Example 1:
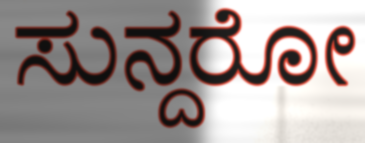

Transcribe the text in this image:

ಸುನ್ದರೋ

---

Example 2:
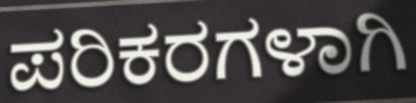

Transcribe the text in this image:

ಪರಿಕರಗಳಾಗಿ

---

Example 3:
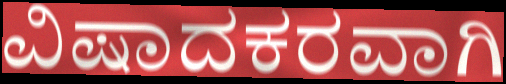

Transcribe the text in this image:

ವಿಷಾದಕರವಾಗಿ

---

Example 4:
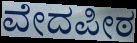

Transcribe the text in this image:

ವೇದಪೀಠ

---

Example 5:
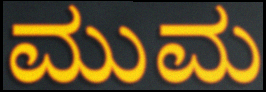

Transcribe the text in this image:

ಮುಮ